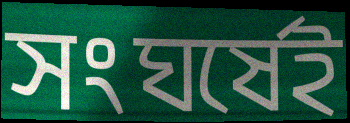
সংঘর্ষেই